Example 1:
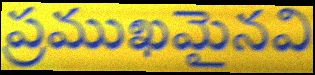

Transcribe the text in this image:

ప్రముఖమైనవి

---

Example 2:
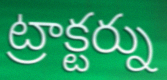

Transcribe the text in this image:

ట్రాక్టర్ను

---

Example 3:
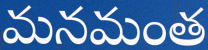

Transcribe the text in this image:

మనమంత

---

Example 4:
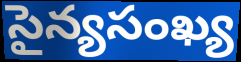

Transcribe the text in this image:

సైన్యసంఖ్య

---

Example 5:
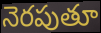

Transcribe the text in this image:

నెరపుతూ